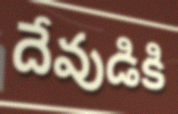
దేవుడికి